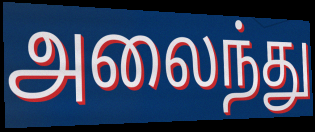
அலைந்து